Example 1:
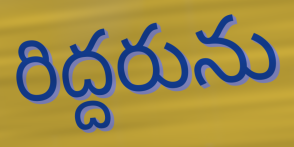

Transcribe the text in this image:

రిద్దరును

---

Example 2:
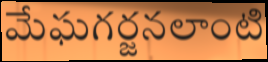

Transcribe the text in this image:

మేఘగర్జనలాంటి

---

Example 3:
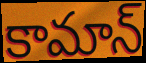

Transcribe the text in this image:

కామాన్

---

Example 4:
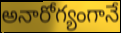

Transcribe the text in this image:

అనారోగ్యంగానే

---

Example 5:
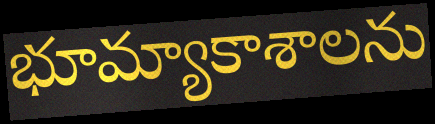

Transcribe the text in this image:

భూమ్యాకాశాలను